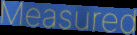
Measured